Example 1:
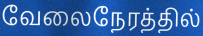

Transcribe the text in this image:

வேலைநேரத்தில்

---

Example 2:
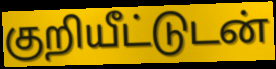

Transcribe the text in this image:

குறியீட்டுடன்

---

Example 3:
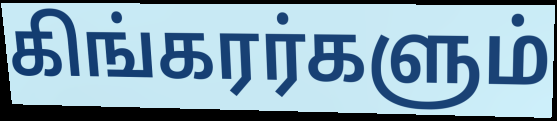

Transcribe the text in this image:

கிங்கரர்களும்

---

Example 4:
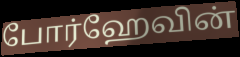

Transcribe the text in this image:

போர்ஹேவின்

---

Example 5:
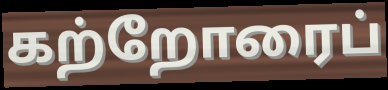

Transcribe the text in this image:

கற்றோரைப்